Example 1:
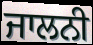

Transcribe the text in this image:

ਜਾਲਨੀ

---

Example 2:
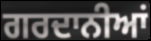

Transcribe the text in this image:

ਗਰਦਾਨੀਆਂ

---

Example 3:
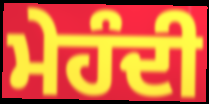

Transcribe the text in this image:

ਮੇਹੰਦੀ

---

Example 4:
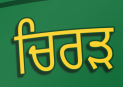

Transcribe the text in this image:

ਚਿਰੜ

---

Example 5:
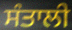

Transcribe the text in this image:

ਸੰਤਾਲੀ